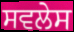
ਸਵਲੇਸ